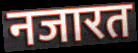
नजारत